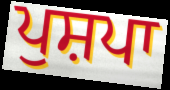
ਪੁਸ਼ਪਾ